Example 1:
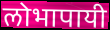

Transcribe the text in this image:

लोभापायी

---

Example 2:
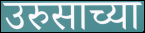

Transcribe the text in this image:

उरुसाच्या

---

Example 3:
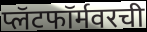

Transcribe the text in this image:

प्लॅटफॉर्मवरची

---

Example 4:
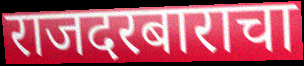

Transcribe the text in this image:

राजदरबाराचा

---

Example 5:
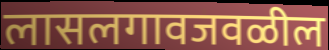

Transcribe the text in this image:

लासलगावजवळील